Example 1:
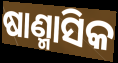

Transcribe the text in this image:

ଷାଣ୍ମାସିକ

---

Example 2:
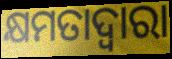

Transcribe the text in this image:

କ୍ଷମତାଦ୍ୱାରା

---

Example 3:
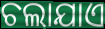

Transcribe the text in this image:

ଚଲାଯାଏ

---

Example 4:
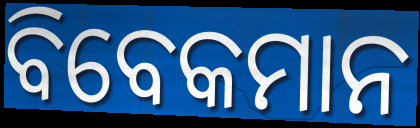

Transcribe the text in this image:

ବିବେକମାନ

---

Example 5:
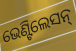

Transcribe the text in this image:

ଭେଣ୍ଟିଲେସନ୍